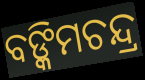
ବଙ୍କିମଚନ୍ଦ୍ର